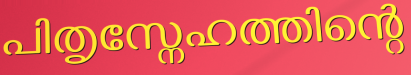
പിതൃസ്നേഹത്തിന്റെ